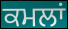
ਕਮਲਾਂ